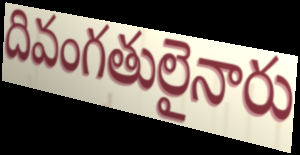
దివంగతులైనారు